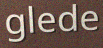
glede